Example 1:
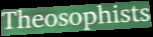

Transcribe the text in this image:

Theosophists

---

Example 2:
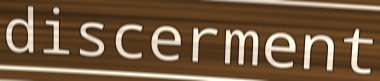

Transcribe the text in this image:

discerment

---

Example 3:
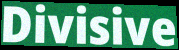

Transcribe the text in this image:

Divisive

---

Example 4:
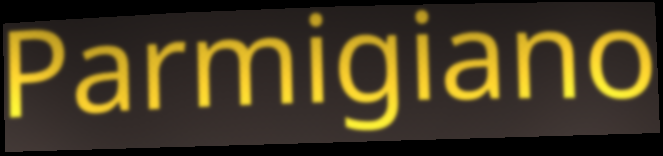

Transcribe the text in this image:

Parmigiano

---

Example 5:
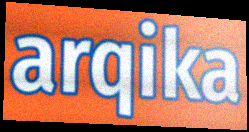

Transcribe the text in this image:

arqika